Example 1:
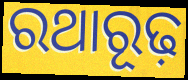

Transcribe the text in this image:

ରଥାରୂଢ଼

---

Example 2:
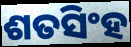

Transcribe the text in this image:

ଶତସିଂହ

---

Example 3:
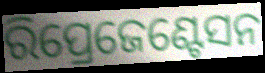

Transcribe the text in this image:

ରିପ୍ରେଜେଣ୍ଟେସନ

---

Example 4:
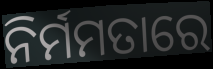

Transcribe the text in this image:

ନିର୍ମମତାରେ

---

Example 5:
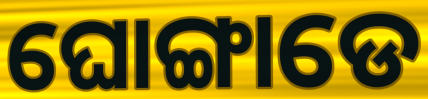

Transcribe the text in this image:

ଘୋଙ୍ଗାଡେ